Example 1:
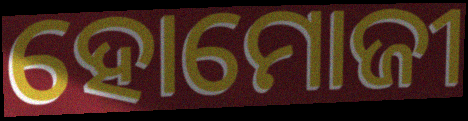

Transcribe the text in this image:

ହୋମୋଜୀ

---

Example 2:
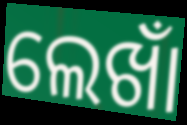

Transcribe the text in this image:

ଲେଖାଁ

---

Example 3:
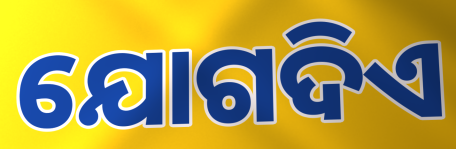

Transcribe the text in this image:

ଯୋଗଦିଏ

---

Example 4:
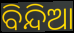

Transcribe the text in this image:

ବିନ୍ଦିଆ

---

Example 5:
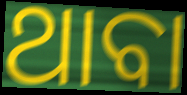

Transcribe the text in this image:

ଥାବା